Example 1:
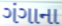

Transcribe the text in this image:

ગંગાના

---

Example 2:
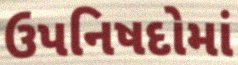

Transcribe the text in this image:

ઉપનિષદોમાં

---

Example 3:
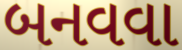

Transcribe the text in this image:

બનવવા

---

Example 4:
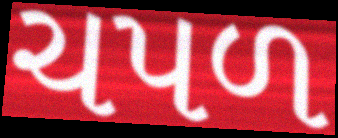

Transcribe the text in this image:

ચપળ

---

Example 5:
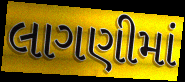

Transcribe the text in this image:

લાગણીમાં